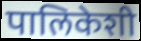
पालिकेशी